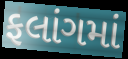
ફલાંગમાં